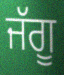
ਜੱਗੂ